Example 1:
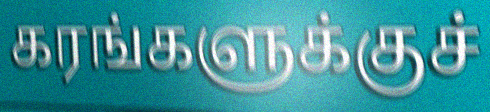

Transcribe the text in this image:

கரங்களுக்குச்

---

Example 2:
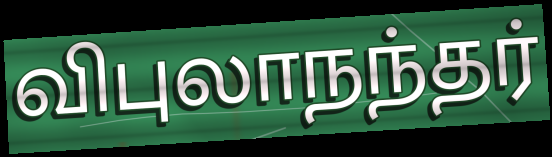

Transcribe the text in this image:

விபுலாநந்தர்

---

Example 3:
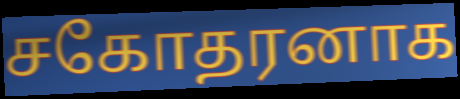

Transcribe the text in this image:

சகோதரனாக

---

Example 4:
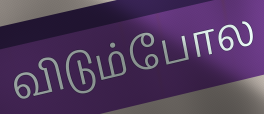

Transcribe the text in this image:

விடும்போல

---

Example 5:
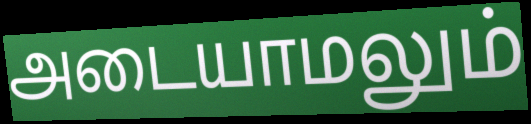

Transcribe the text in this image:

அடையாமலும்